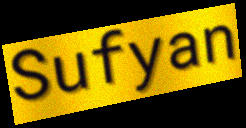
Sufyan